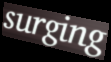
surging